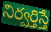
నిర్వర్తిస్తే